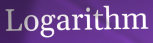
Logarithm